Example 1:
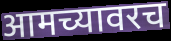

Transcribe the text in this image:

आमच्यावरच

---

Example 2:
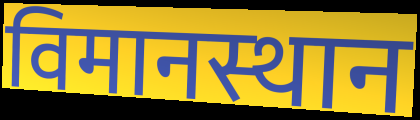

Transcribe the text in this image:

विमानस्थान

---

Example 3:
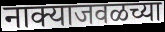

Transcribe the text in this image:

नाक्याजवळच्या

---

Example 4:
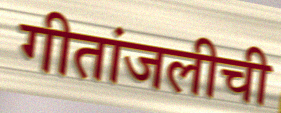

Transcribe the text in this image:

गीतांजलीची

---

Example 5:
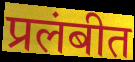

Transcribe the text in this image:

प्रलंबीत